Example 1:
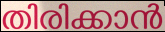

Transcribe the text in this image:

തിരിക്കാൻ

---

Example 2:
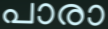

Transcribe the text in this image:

പാരാ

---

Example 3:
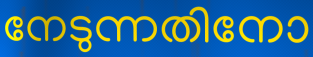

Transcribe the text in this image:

നേടുന്നതിനോ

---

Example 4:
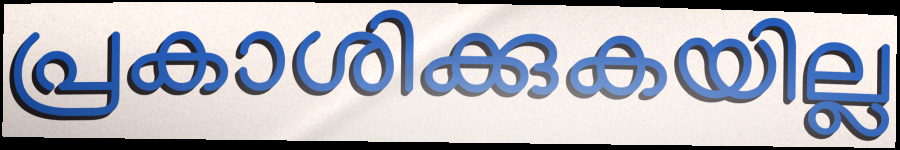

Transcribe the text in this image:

പ്രകാശിക്കുകയില്ല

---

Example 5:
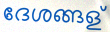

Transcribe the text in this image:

ദേശങ്ങള്